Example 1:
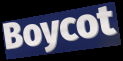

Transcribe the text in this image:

Boycot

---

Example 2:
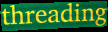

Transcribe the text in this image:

threading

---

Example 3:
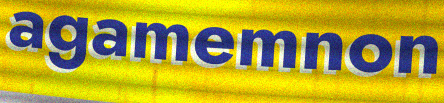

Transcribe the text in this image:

agamemnon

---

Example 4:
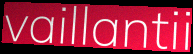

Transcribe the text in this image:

vaillantii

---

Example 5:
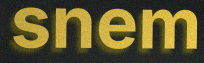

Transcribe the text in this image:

snem